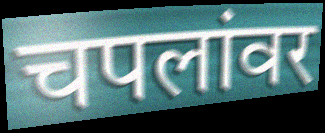
चपलांवर